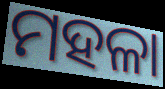
ମହଳା